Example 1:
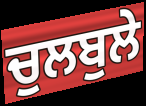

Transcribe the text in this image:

ਚੁਲਬੁਲੇ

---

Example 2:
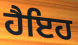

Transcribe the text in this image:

ਹੈਇਹ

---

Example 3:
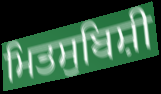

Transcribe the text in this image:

ਮਿਤਸੁਬਿਸ਼ੀ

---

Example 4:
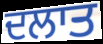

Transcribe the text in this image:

ਦਲਾਤ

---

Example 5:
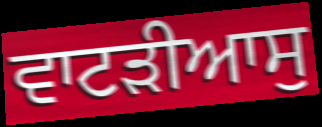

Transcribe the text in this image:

ਵਾਟੜੀਆਸੁ